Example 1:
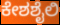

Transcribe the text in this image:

ಕೇಶಶೈಲಿ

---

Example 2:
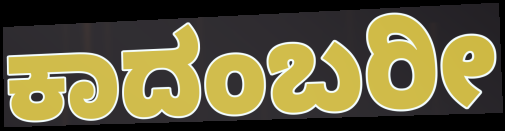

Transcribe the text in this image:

ಕಾದಂಬರೀ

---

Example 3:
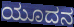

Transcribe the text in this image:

ಯೂದನ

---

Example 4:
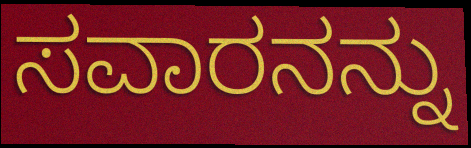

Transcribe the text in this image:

ಸವಾರನನ್ನು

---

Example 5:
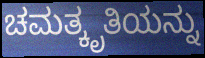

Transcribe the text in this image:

ಚಮತ್ಕೃತಿಯನ್ನು